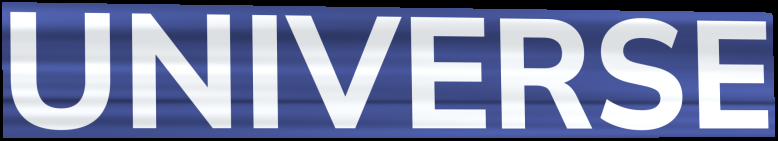
UNIVERSE